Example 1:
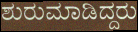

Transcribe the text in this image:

ಶುರುಮಾಡಿದ್ದರು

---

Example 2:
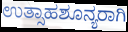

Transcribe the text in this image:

ಉತ್ಸಾಹಶೂನ್ಯರಾಗಿ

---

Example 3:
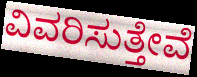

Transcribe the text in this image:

ವಿವರಿಸುತ್ತೇವೆ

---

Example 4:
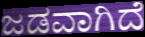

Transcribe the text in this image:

ಜಡವಾಗಿದೆ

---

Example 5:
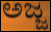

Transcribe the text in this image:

ಅಜ್ಜ